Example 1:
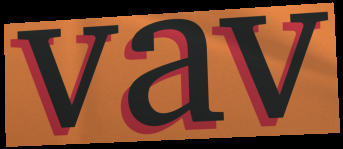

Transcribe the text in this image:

vav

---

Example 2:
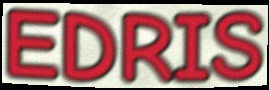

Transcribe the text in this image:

EDRIS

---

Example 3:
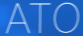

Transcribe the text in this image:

ATO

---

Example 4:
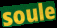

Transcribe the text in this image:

soule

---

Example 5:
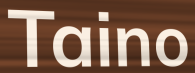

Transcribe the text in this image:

Taino